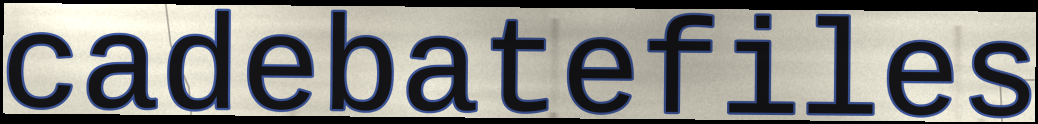
cadebatefiles